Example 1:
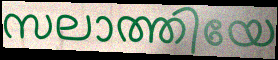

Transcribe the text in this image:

സലാത്തിയേ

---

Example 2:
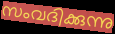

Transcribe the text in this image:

സംവദിക്കുന്നു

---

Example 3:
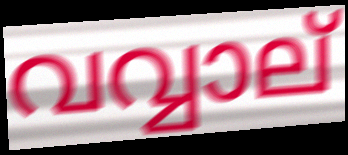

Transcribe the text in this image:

വവ്വാല്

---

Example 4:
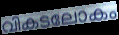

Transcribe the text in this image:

വികടലോകം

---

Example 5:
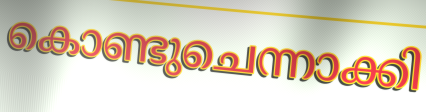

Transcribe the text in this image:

കൊണ്ടുചെന്നാക്കി